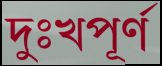
দুঃখপূর্ণ